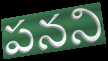
పనని